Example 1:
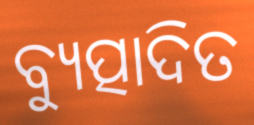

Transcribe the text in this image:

ବ୍ୟୁତ୍ପାଦିତ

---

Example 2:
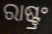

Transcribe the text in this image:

ରାଷ୍ଟ୍ରଂ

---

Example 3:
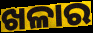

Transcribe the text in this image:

ଖଳାର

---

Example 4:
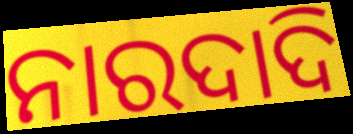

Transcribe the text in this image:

ନାରଦାଦି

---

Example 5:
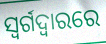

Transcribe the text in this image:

ସ୍ୱର୍ଗଦ୍ୱାରରେ